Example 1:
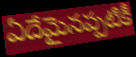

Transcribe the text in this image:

ఏదేమైనప్పటికీ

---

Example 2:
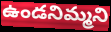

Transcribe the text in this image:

ఉండనిమ్మని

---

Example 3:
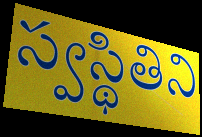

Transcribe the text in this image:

స్వస్థితిని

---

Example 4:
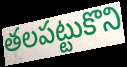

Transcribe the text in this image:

తలపట్టుకొని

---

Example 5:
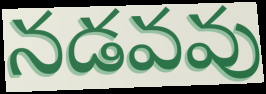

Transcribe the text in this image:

నడవవు